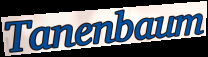
Tanenbaum